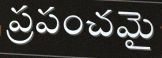
ప్రపంచమై